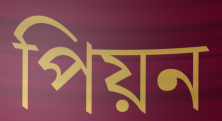
পিয়ন